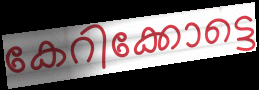
കേറിക്കോട്ടെ